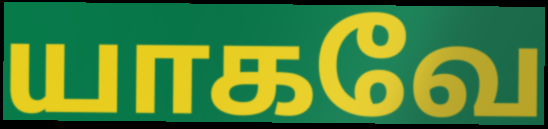
யாகவே